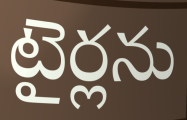
టైర్లను